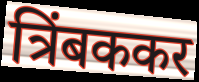
त्रिंबककर